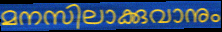
മനസിലാക്കുവാനും